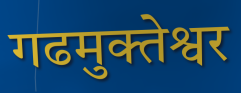
गढमुक्तेश्वर